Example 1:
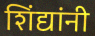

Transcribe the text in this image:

शिंद्यांनी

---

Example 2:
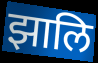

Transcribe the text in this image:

झालि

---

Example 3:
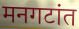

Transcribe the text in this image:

मनगटांत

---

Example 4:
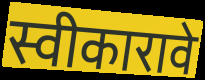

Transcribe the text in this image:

स्वीकारावे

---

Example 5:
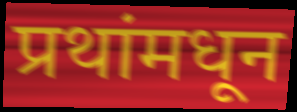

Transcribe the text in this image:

प्रथांमधून